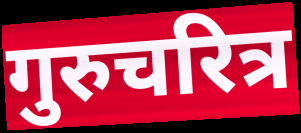
गुरुचरित्र